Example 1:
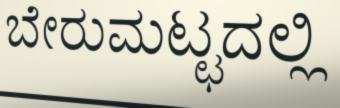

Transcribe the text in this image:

ಬೇರುಮಟ್ಟದಲ್ಲಿ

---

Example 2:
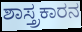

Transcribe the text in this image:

ಶಾಸ್ತ್ರಕಾರನ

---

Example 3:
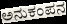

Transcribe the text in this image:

ಅನುಕಂಪನ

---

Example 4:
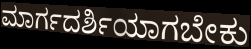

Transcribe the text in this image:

ಮಾರ್ಗದರ್ಶಿಯಾಗಬೇಕು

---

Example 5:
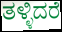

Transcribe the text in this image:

ತಳ್ಳಿದರೆ